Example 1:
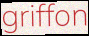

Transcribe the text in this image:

griffon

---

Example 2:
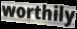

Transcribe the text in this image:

worthily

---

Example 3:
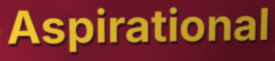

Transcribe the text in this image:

Aspirational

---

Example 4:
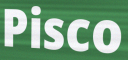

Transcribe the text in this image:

Pisco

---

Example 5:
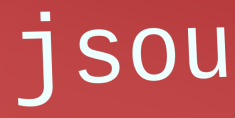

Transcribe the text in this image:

jsou